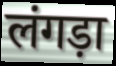
लंगड़ा